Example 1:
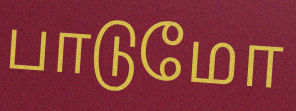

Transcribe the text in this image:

பாடுமோ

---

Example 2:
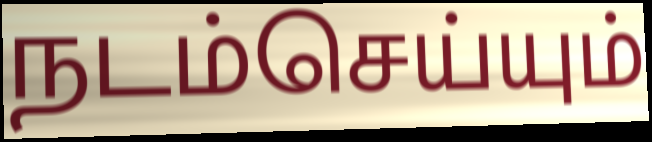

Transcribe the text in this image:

நடம்செய்யும்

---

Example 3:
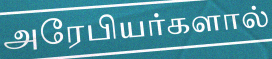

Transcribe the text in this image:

அரேபியர்களால்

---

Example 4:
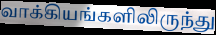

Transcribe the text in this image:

வாக்கியங்களிலிருந்து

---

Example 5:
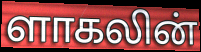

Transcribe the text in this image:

ளாகலின்